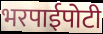
भरपाईपोटी